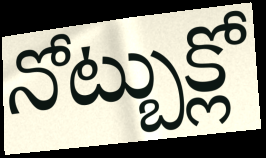
నోట్బుక్లో